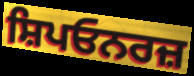
ਸ਼ਿਪਓਨਰਜ਼